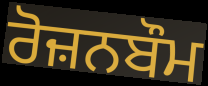
ਰੋਜ਼ਨਬੌਮ